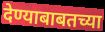
देण्याबाबतच्या